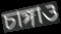
চাঙ্গাও